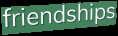
friendships